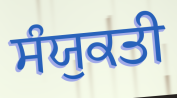
ਸੰਯੁਕਤੀ